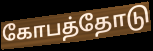
கோபத்தோடு